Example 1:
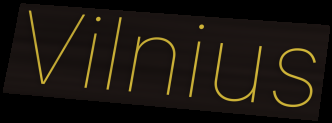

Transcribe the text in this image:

Vilnius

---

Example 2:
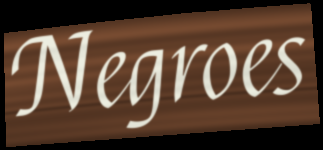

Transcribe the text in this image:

Negroes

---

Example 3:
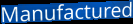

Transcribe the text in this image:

Manufactured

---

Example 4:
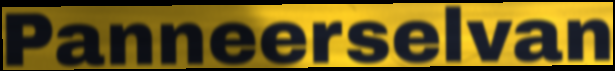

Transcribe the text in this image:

Panneerselvan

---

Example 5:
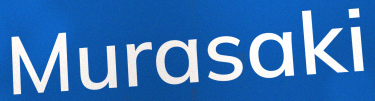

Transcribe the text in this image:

Murasaki